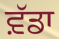
ਵ਼ੱਡਾ